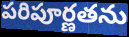
పరిపూర్ణతను